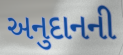
અનુદાનની